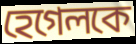
হেগেলকে